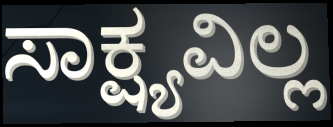
ಸಾಕ್ಷ್ಯವಿಲ್ಲ